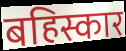
बहिस्कार